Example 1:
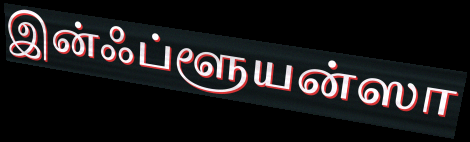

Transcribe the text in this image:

இன்ஃப்ளூயன்ஸா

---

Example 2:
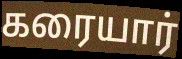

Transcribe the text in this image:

கரையார்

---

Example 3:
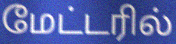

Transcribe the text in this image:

மேட்டரில்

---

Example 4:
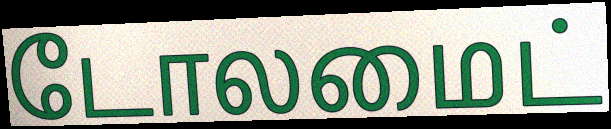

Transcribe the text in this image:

டோலமைட்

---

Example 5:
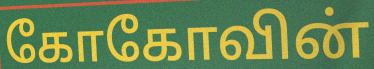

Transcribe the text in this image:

கோகோவின்